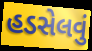
હડસેલવું